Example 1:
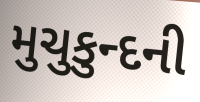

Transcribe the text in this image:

મુચુકુન્દની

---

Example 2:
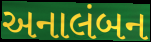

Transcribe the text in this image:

અનાલંબન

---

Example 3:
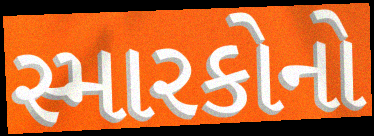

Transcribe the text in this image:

સ્મારકોનો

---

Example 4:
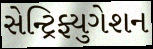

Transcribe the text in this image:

સેન્ટ્રિફ્યુગેશન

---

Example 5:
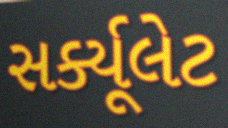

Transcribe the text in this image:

સર્ક્યૂલેટ